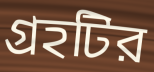
গ্রহটির